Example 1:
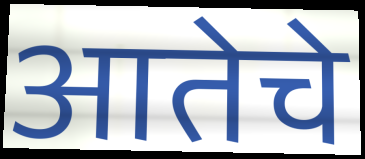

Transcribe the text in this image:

आतेचे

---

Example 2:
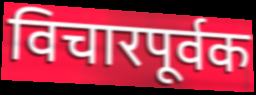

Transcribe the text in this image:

विचारपूर्वक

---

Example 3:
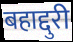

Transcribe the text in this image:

बहाद्दुरी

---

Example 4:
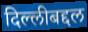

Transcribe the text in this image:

दिल्लीबद्दल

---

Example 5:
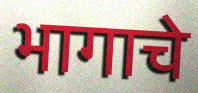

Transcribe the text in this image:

भागाचे